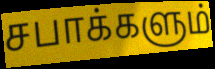
சபாக்களும்